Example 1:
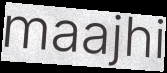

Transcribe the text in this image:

maajhi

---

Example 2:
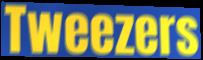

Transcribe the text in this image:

Tweezers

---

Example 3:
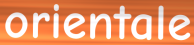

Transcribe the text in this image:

orientale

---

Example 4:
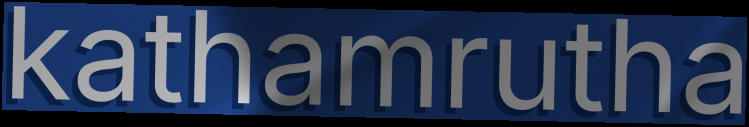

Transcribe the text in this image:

kathamrutha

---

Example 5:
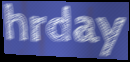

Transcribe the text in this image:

hrday